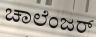
ಚಾಲೆಂಜರ್